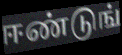
ஈண்டுங்